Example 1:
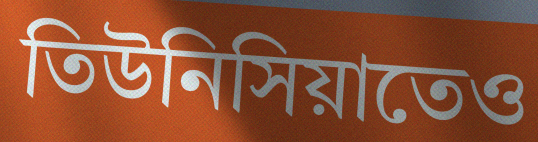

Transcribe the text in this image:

তিউনিসিয়াতেও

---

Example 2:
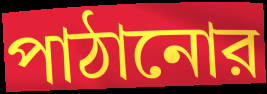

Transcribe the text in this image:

পাঠানোর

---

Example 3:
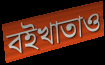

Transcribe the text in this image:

বইখাতাও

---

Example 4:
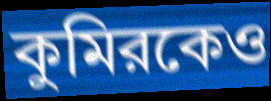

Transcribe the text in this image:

কুমিরকেও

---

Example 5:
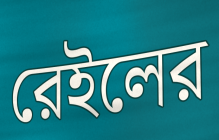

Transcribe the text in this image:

রেইলের